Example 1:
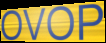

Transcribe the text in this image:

OVOP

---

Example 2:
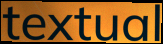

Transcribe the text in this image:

textual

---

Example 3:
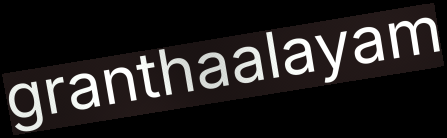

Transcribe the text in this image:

granthaalayam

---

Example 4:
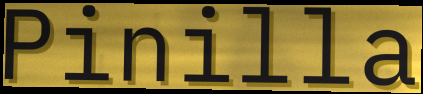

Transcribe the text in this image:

Pinilla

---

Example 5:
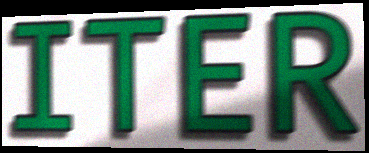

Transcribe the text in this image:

ITER